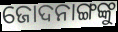
ଜୋଦନାଙ୍ଗଙ୍କୁ